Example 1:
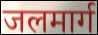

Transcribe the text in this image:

जलमार्ग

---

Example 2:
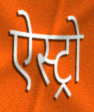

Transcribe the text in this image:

ऐस्ट्रो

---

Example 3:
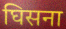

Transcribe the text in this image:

घिसना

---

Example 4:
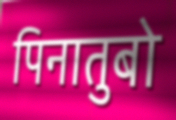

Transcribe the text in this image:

पिनातुबो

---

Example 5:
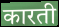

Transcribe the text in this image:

कारती